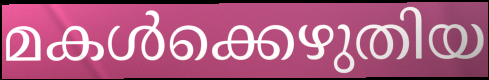
മകൾക്കെഴുതിയ